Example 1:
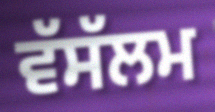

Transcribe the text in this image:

ਵੱਸੱਲਮ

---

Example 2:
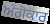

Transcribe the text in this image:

ਅੰਗੋਕਾਰ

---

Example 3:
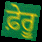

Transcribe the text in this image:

ਫ਼ੇਰੂ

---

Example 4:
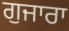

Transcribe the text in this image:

ਗੁਜਾਰਾ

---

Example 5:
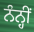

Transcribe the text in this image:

ਨੰਨ੍ਹੀਂ